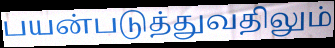
பயன்படுத்துவதிலும்